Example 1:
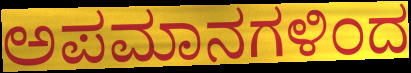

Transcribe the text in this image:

ಅಪಮಾನಗಳಿಂದ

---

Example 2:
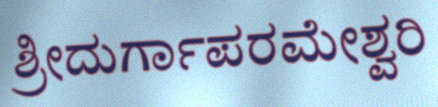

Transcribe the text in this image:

ಶ್ರೀದುರ್ಗಾಪರಮೇಶ್ವರಿ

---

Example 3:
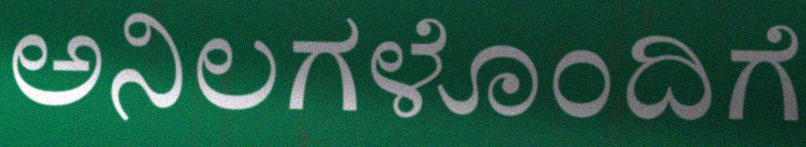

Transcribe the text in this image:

ಅನಿಲಗಳೊಂದಿಗೆ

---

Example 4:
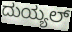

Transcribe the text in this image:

ದುಯ್ಯಲ್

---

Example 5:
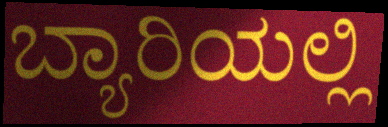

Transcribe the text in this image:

ಬ್ಯಾರಿಯಲ್ಲಿ